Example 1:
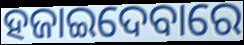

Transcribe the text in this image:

ହଜାଇଦେବାରେ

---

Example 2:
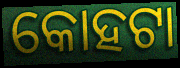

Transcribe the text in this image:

କୋହଟା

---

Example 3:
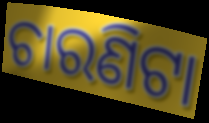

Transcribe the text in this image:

ଚାରଣିଟା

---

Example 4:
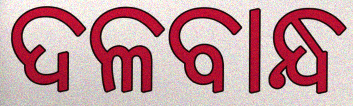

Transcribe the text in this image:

ଦଳବାନ୍ଧ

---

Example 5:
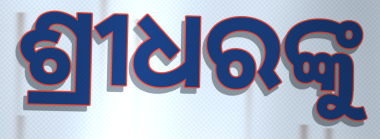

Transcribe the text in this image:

ଶ୍ରୀଧରଙ୍କୁ